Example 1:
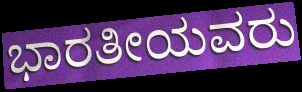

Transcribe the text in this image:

ಭಾರತೀಯವರು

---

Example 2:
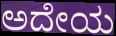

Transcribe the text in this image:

ಅದೇಯ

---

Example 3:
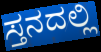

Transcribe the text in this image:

ಸ್ತನದಲ್ಲಿ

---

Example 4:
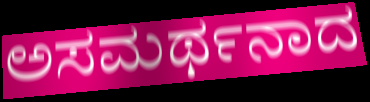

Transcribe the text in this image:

ಅಸಮರ್ಥನಾದ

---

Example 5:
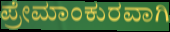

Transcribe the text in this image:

ಪ್ರೇಮಾಂಕುರವಾಗಿ